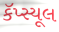
કૅપ્સ્યૂલ